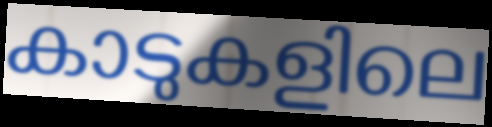
കാടുകളിലെ